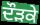
ਦੌੜਕੇ